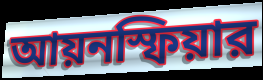
আয়নস্ফিয়ার